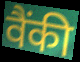
वैंकी